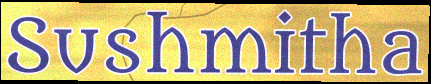
Sushmitha